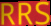
RRS